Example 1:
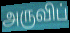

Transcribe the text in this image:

அருவிப்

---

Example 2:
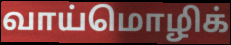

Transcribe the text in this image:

வாய்மொழிக்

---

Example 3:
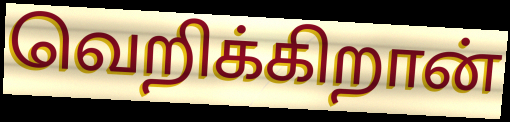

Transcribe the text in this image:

வெறிக்கிறான்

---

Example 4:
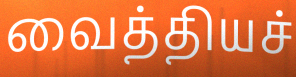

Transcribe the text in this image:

வைத்தியச்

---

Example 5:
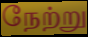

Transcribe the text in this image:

நேற்று